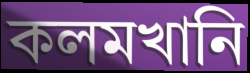
কলমখানি